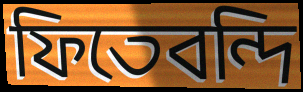
ফিতেবন্দি